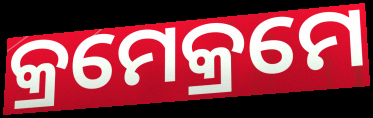
କ୍ରମେକ୍ରମେ